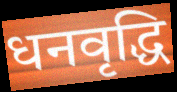
धनवृद्धि